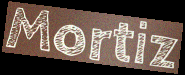
Mortiz